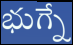
భుగ్నే